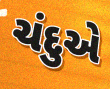
ચંદુએ